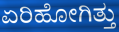
ಏರಿಹೋಗಿತ್ತು